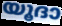
യൂദാ